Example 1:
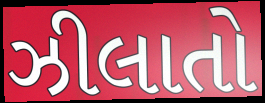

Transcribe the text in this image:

ઝીલાતો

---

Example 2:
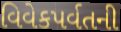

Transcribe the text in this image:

વિવેકપર્વતની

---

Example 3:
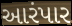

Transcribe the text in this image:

આરંપાર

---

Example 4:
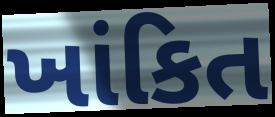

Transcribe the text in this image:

ખાંકિત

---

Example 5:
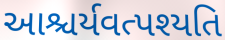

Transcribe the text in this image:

આશ્ચર્યવત્પશ્યતિ